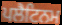
ਪਲੈਟਿਨਮ